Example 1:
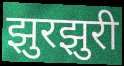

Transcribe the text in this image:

झुरझुरी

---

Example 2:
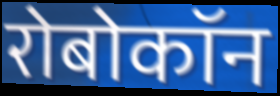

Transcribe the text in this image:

रोबोकॉन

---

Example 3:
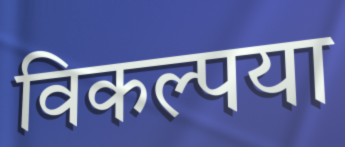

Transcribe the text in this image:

विकल्पया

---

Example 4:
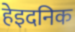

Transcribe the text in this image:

हेइदनिक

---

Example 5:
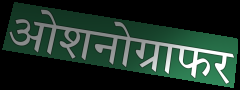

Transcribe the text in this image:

ओशनोग्राफर